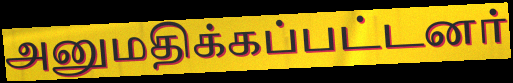
அனுமதிக்கப்பட்டனர்